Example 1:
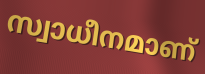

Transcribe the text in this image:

സ്വാധീനമാണ്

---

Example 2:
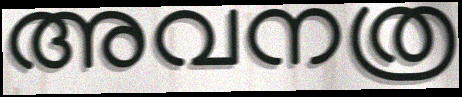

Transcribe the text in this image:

അവനത്ര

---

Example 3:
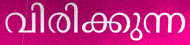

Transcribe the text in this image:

വിരിക്കുന്ന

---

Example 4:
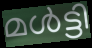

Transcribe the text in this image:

മൾട്ടി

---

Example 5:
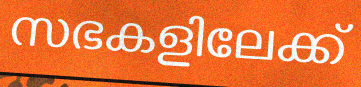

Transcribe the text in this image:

സഭകളിലേക്ക്